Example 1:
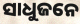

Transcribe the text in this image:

ସାଧୁଜନେ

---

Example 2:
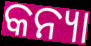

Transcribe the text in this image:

କନ୍ୟା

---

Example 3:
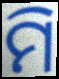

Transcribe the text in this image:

ମି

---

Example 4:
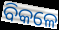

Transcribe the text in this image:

ବିକଳେ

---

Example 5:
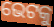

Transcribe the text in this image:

ଭେଟକୁ